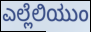
ಎಲ್ಲೆಲಿಯುಂ